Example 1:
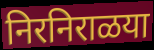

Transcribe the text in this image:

निरनिराळया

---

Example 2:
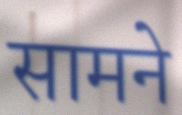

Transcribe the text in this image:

सामने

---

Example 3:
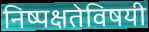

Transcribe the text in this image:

निष्पक्षतेविषयी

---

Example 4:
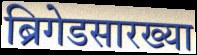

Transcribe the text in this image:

ब्रिगेडसारख्या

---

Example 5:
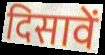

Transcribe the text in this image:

दिसावें